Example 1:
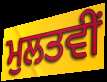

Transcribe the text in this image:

ਮੁਲਤਵੀਂ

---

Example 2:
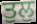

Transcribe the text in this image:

ਤੁਲੁ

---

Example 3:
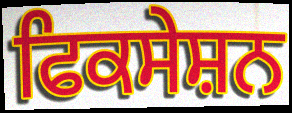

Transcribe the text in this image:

ਫਿਕਸੇਸ਼ਨ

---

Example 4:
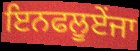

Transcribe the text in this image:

ਇਨਫਲੂਏਂਜਾ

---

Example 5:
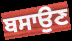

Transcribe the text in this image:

ਬਸਾਉਣ